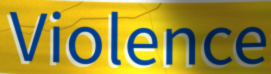
Violence